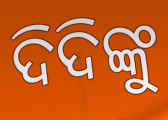
ଦିଦିଙ୍କୁ